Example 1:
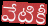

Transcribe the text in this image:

వేటికీ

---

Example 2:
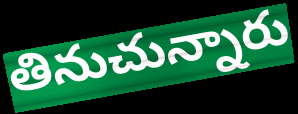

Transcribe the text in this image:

తినుచున్నారు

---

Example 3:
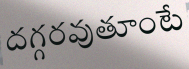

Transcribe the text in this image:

దగ్గరవుతూంటే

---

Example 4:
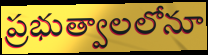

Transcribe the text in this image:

ప్రభుత్వాలలోనూ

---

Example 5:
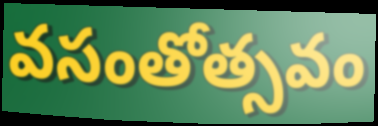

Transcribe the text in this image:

వసంతోత్సవం